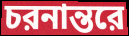
চরনান্তরে